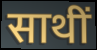
साथीं